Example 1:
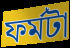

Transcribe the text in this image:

ফর্মটা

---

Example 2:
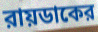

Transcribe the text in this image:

রায়ডাকের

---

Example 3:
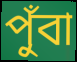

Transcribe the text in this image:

পুঁবা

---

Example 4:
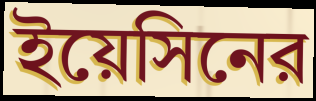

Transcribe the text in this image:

ইয়েসিনের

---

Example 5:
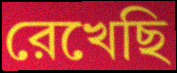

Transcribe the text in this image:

রেখেছি